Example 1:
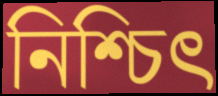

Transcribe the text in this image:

নিশ্চিৎ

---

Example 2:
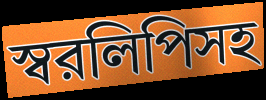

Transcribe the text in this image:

স্বরলিপিসহ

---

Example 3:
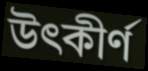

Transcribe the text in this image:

উৎকীর্ণ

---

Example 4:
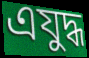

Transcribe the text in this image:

এযুদ্ধ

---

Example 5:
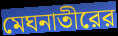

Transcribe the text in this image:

মেঘনাতীরের